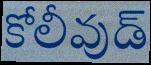
కోలీవుడ్